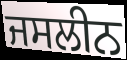
ਜਸਲੀਨ